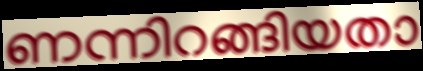
ണന്നിറങ്ങിയതാ